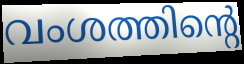
വംശത്തിന്റെ